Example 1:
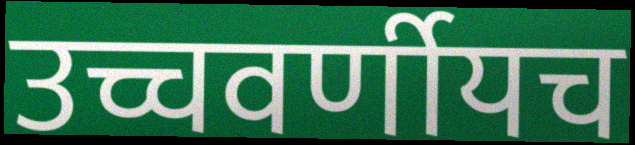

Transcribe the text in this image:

उच्चवर्णीयच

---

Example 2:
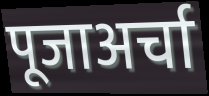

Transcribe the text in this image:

पूजाअर्चा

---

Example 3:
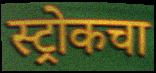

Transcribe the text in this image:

स्ट्रोकचा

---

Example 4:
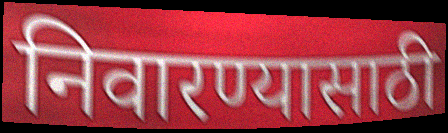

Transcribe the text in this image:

निवारण्यासाठी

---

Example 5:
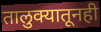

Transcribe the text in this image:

तालुक्यातूनही